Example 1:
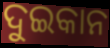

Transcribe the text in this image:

ଦୁଇକାନ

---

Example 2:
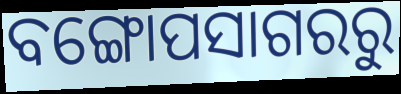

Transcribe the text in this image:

ବଙ୍ଗୋପସାଗରରୁ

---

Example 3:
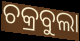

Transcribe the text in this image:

ଚକ୍ରବୁଲା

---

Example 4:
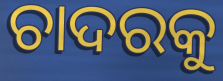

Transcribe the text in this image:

ଚାଦରକୁ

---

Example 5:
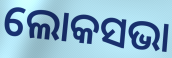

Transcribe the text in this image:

ଲୋକସଭା